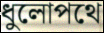
ধুলোপথে